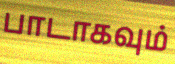
பாடாகவும்